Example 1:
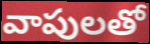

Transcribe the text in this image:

వాపులతో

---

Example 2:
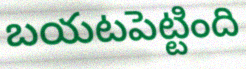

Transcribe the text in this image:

బయటపెట్టింది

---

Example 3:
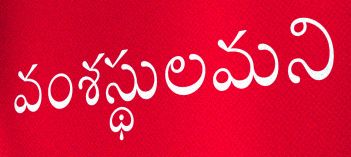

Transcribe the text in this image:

వంశస్థులమని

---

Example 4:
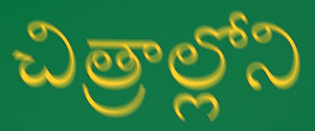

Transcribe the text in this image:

చిత్రాల్లోని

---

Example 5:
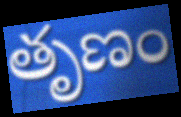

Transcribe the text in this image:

తృణం